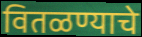
वितळण्याचे